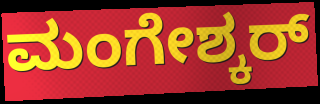
ಮಂಗೇಶ್ಕರ್